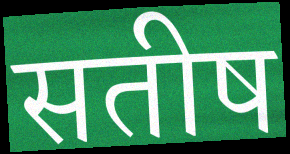
सतीष